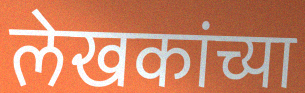
लेखकांच्या